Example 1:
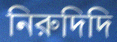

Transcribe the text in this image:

নিরুদিদি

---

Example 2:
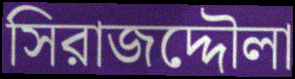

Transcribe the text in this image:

সিরাজদ্দৌলা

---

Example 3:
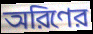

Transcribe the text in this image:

অরিণের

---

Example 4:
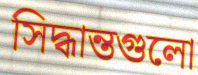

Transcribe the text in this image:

সিদ্ধান্তগুলো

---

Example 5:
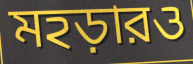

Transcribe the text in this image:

মহড়ারও